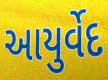
આયુર્વેદ